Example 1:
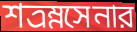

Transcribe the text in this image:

শত্রম্নসেনার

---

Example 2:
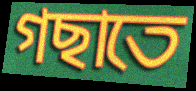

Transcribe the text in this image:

গছাতে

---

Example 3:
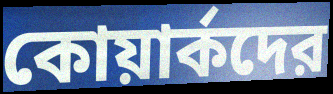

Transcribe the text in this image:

কোয়ার্কদের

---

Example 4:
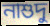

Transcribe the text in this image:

নাশুদু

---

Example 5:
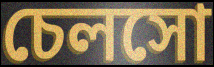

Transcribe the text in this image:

চেলসো